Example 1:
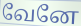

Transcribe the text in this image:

வேனே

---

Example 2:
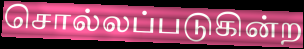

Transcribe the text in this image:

சொல்லப்படுகின்ற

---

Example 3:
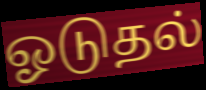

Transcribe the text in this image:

ஓடுதல்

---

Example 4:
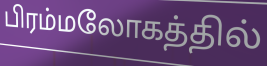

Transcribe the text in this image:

பிரம்மலோகத்தில்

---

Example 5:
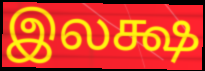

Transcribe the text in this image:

இலக்ஷ